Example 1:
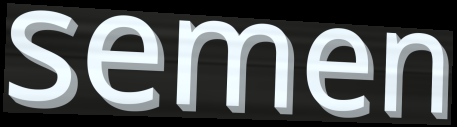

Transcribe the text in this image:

semen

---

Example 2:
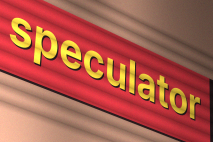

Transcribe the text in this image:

speculator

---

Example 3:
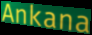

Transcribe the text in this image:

Ankana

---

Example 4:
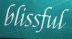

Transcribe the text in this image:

blissful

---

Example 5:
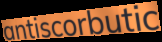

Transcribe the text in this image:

antiscorbutic